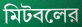
মিটবলের